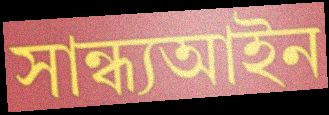
সান্ধ্যআইন